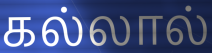
கல்லால்